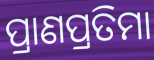
ପ୍ରାଣପ୍ରତିମା